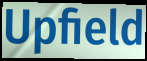
Upfield